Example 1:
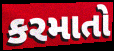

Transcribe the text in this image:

કરમાતો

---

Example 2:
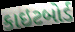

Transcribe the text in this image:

કાઇટબોર્ડ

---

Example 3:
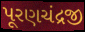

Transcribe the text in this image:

પૂરણચંદ્રજી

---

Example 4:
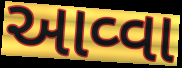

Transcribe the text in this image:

આવ્વા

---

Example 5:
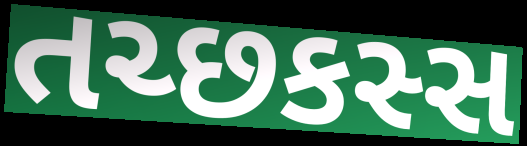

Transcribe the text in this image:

તચ્છકસ્સ